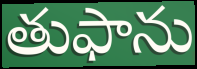
తుఫాను